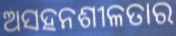
ଅସହନଶୀଳତାର